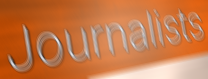
Journalists